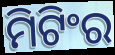
ମିଟିଂର